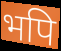
भपि